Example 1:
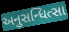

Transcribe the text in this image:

અનુસન્ધિત્સા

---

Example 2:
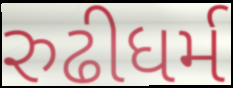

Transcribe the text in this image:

રુઢીધર્મ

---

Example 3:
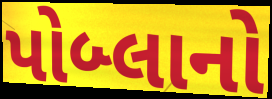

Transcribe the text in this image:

પોબ્લાનો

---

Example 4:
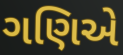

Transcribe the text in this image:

ગણિએ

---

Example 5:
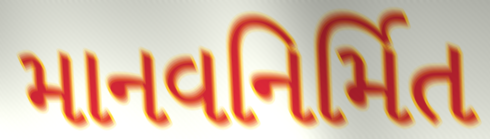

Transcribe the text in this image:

માનવનિર્મિત